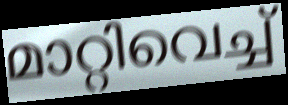
മാറ്റിവെച്ച്